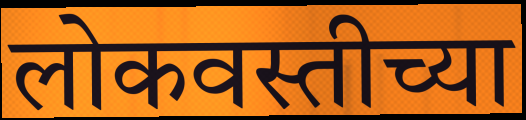
लोकवस्तीच्या